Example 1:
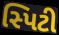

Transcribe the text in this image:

સ્પિટી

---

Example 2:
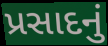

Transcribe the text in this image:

પ્રસાદનું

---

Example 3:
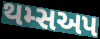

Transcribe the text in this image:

થમ્સઅપ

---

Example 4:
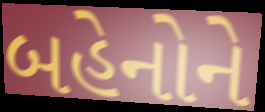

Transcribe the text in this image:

બહેનોને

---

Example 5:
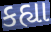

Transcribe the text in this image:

કહ્યા